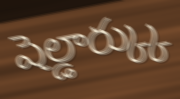
షెల్డార్క్కు